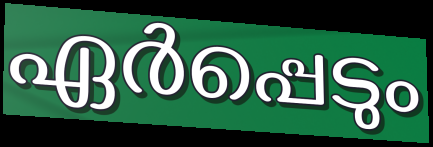
ഏർപ്പെടും